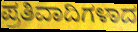
ಪ್ರತಿವಾದಿಗಳಾದ